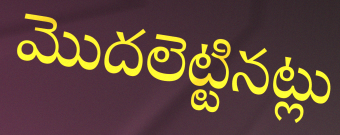
మొదలెట్టినట్లు